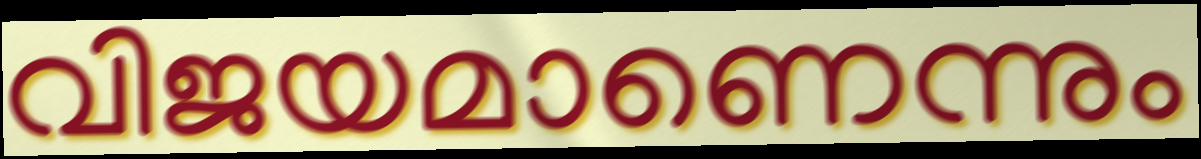
വിജയമാണെന്നും